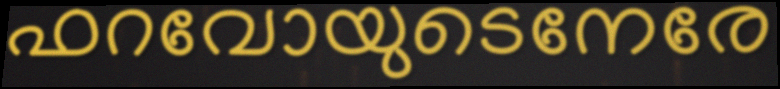
ഫറവോയുടെനേരേ